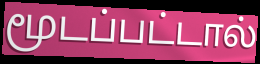
மூடப்பட்டால்